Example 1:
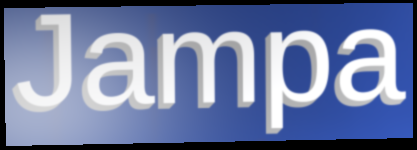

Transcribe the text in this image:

Jampa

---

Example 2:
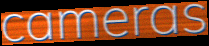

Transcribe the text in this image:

cameras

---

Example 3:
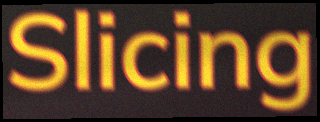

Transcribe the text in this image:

Slicing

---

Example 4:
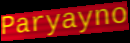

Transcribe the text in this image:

Paryayno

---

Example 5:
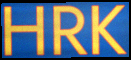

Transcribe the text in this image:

HRK